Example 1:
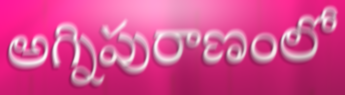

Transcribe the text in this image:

అగ్నిపురాణంలో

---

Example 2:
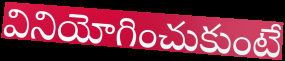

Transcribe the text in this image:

వినియోగించుకుంటే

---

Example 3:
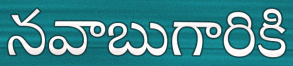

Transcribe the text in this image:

నవాబుగారికి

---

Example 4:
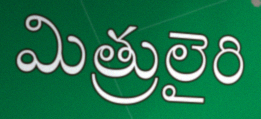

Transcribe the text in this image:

మిత్రులైరి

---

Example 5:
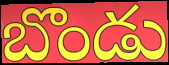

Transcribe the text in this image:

బొండు